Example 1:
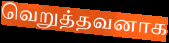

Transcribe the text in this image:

வெறுத்தவனாக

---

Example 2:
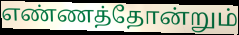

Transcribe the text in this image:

எண்ணத்தோன்றும்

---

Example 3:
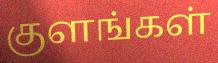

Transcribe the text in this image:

குளங்கள்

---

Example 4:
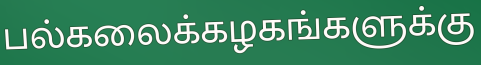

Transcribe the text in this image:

பல்கலைக்கழகங்களுக்கு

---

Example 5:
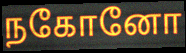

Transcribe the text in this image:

நகோனோ